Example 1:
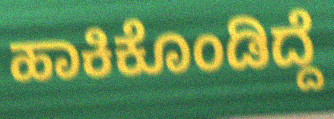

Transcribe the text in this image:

ಹಾಕಿಕೊಂಡಿದ್ದೆ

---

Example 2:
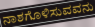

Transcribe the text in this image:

ನಾಶಗೊಳಿಸುವವನು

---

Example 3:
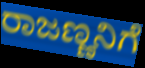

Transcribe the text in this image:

ರಾಜಣ್ಣನಿಗೆ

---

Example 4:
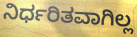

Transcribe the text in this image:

ನಿರ್ಧರಿತವಾಗಿಲ್ಲ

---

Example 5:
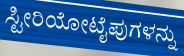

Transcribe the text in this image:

ಸ್ಟೀರಿಯೋಟೈಪುಗಳನ್ನು